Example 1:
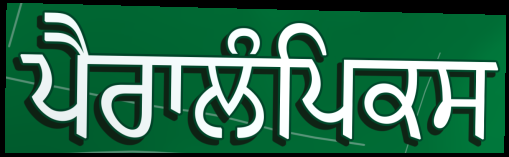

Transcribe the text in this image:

ਪੈਰਾਲੰਪਿਕਸ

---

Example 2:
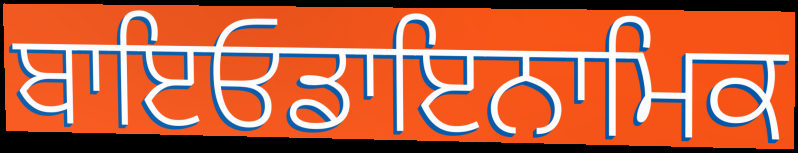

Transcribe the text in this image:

ਬਾਇਓਡਾਇਨਾਮਿਕ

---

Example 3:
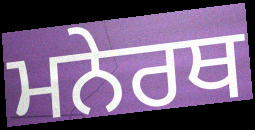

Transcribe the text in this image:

ਮਨੇਰਥ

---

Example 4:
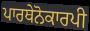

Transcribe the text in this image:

ਪਾਰਥੇਨੋਕਾਰਪੀ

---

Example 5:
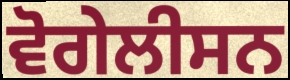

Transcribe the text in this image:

ਵੋਗੇਲੀਸਨ